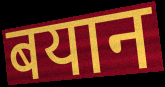
बयान